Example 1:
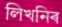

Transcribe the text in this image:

লিখনিৰ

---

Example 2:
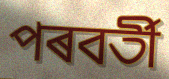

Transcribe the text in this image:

পৰবৰ্তী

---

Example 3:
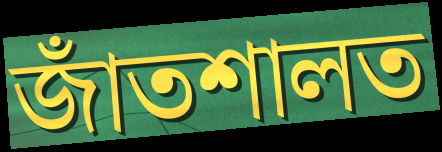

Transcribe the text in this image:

জাঁতশালত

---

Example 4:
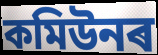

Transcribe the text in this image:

কমিউনৰ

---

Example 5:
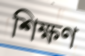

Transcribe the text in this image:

শিক্ষণ